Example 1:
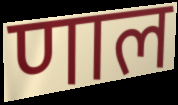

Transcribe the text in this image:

णाल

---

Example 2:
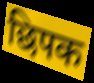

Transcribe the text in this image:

छिपक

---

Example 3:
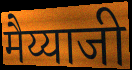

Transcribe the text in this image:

मैय्याजी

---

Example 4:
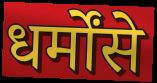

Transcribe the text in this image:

धर्मोंसे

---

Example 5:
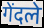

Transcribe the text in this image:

गेंदले